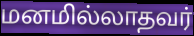
மனமில்லாதவர்